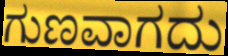
ಗುಣವಾಗದು